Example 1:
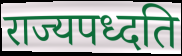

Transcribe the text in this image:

राज्यपध्दति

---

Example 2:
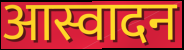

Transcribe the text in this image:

आस्वादन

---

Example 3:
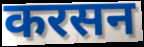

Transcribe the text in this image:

करसन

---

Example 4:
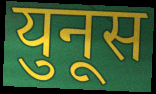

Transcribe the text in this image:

युनूस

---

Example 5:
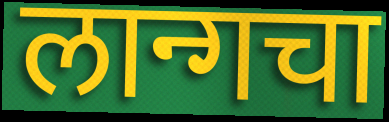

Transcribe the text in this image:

लान्गचा